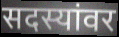
सदस्यांवर